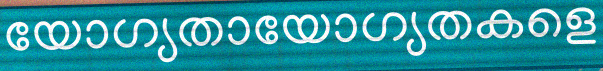
യോഗ്യതായോഗ്യതകളെ